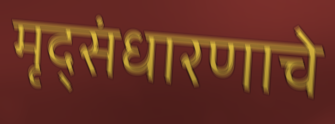
मृद्संधारणाचे